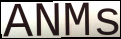
ANMs